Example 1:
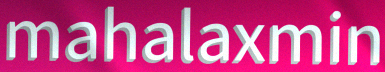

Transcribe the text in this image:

mahalaxmin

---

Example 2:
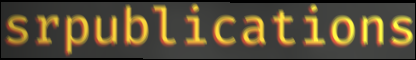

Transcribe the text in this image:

srpublications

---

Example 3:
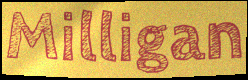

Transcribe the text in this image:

Milligan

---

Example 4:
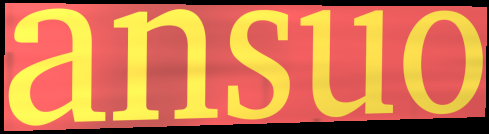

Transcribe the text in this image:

ansuo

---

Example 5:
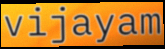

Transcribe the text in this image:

vijayam